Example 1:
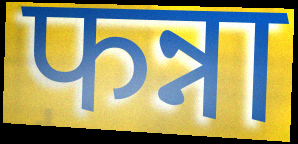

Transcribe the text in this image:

फन्ना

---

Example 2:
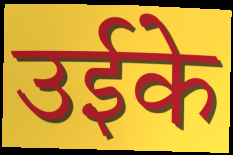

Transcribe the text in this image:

उईके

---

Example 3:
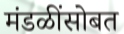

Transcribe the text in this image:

मंडळींसोबत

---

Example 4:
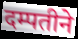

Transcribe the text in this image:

दम्पतीने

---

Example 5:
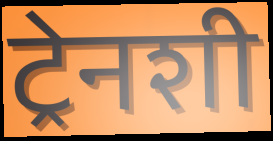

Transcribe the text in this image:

ट्रेनशी